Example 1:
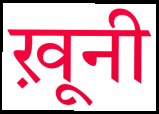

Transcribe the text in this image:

ख़ूनी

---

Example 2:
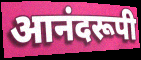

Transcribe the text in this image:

आनंदरूपी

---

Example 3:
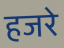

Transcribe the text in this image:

हजरे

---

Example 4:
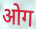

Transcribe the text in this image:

ओग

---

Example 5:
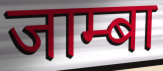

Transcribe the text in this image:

जाम्बा